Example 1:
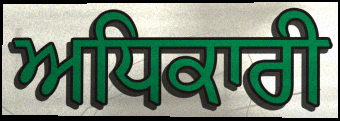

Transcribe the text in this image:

ਅਧਿਕਾਰੀ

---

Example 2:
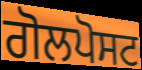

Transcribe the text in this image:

ਗੋਲਪੋਸਟ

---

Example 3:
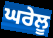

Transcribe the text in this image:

ਘਰੇਲੂ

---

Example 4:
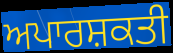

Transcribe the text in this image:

ਅਪਾਰਸ਼ਕਤੀ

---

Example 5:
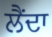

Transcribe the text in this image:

ਲੈਂਦਾ